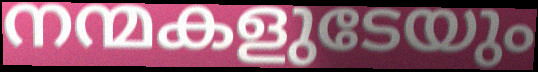
നന്മകളുടേയും